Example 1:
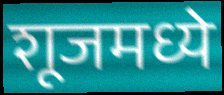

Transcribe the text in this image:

शूजमध्ये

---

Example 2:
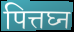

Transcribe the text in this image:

पित्तघ्न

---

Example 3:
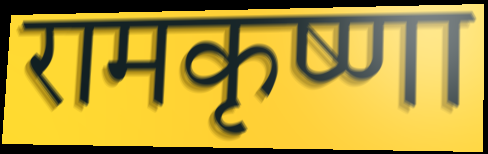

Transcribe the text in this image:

रामकृष्णा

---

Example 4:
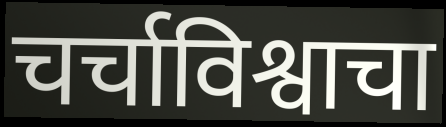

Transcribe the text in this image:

चर्चाविश्वाचा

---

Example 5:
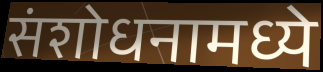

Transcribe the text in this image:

संशोधनामध्ये